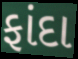
ફાંદા